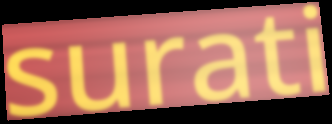
surati